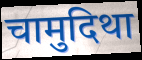
चामुदिथा